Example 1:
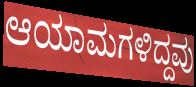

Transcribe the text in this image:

ಆಯಾಮಗಳಿದ್ದವು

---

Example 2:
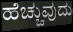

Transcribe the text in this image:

ಹೆಚ್ಚುವುದು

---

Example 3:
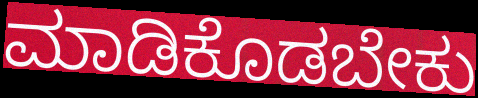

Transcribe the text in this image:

ಮಾಡಿಕೊಡಬೇಕು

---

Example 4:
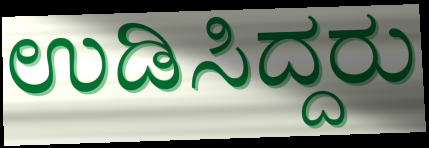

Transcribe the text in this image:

ಉಡಿಸಿದ್ದರು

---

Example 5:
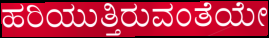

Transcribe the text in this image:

ಹರಿಯುತ್ತಿರುವಂತೆಯೇ